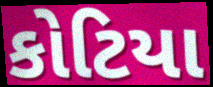
કોટિયા